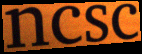
ncsc